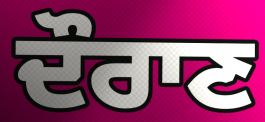
ਦੌਰਾਣ